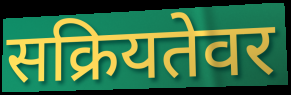
सक्रियतेवर